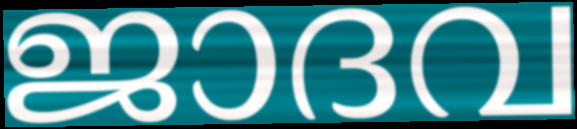
ജാദവ